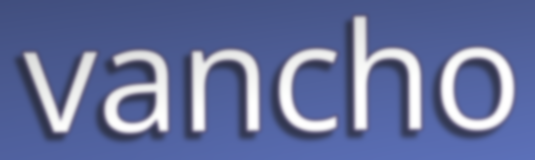
vancho